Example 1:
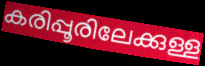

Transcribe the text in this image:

കരിപ്പൂരിലേക്കുള്ള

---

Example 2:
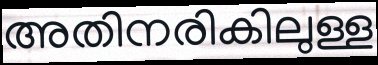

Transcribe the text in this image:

അതിനരികിലുള്ള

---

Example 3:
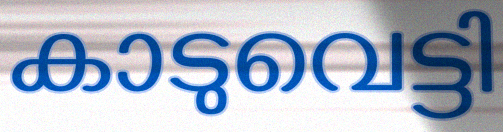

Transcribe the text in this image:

കാടുവെട്ടി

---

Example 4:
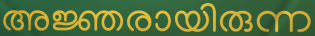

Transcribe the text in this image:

അജ്ഞരായിരുന്ന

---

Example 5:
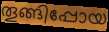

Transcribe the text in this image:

തൂങ്ങിപ്പോയ